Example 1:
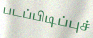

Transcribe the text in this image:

படப்பிடிப்புச்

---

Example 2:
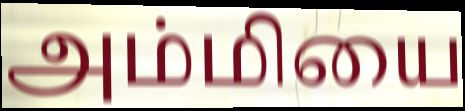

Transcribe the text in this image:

அம்மியை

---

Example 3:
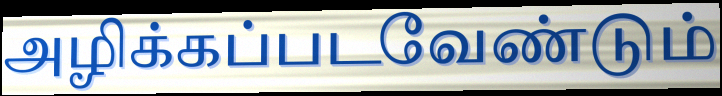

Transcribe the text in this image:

அழிக்கப்படவேண்டும்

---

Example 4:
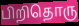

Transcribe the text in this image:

பிறிதொரு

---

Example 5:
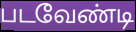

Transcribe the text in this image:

படவேண்டி